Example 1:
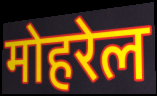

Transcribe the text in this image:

मोहरेल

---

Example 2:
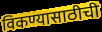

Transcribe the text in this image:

विकण्यासाठीची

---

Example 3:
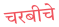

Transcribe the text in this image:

चरबीचे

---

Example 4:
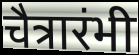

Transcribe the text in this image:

चैत्रारंभी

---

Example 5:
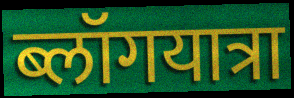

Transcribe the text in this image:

ब्लॉगयात्रा